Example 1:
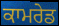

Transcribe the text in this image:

ਕਾਮਰੇਡ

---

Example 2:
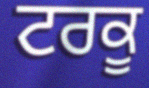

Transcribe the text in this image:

ਟਰਕੂ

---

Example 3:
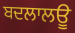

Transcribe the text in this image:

ਬਦਲਾਲਊ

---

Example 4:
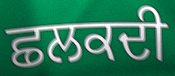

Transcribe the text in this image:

ਛਲਕਦੀ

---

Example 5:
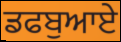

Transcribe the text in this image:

ਡਫਬੁਆਏ